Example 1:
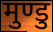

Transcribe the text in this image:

मुण्डु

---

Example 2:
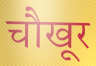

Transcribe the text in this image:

चौखूर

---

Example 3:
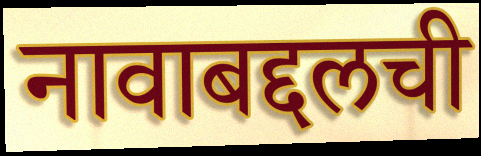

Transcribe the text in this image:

नावाबद्दलची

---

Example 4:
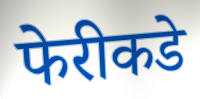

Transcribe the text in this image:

फेरीकडे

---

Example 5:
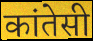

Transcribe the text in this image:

कांतेसी